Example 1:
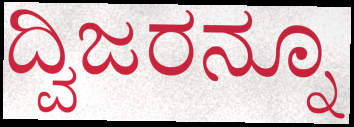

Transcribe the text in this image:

ದ್ವಿಜರನ್ನೂ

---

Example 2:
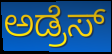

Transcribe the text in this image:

ಅಡ್ರೆಸ್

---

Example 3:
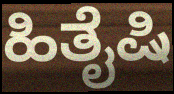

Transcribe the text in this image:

ಹಿತೈಷಿ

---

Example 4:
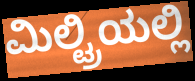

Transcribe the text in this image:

ಮಿಲ್ಟ್ರಿಯಲ್ಲಿ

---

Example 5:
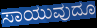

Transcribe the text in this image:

ಸಾಯುವುದೂ